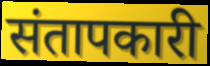
संतापकारी